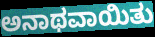
ಅನಾಥವಾಯಿತು